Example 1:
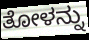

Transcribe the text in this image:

ತೋಳನ್ನು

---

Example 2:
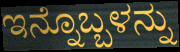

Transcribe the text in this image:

ಇನ್ನೊಬ್ಬಳನ್ನು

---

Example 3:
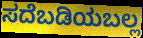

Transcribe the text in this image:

ಸದೆಬಡಿಯಬಲ್ಲ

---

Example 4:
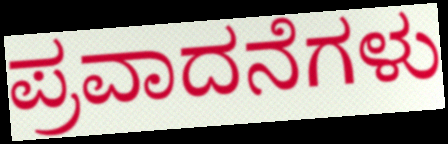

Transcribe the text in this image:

ಪ್ರವಾದನೆಗಳು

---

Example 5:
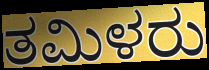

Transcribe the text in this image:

ತಮಿಳರು